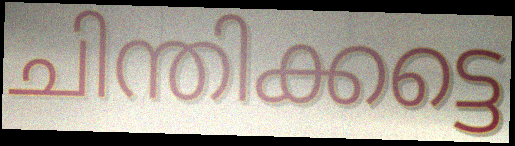
ചിന്തിക്കട്ടെ